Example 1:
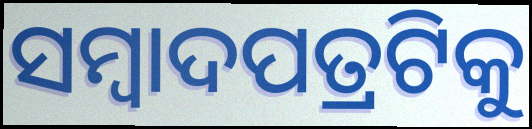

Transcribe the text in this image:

ସମ୍ବାଦପତ୍ରଟିକୁ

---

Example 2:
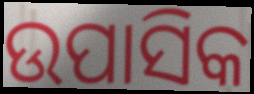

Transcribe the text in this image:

ଉପାସିକ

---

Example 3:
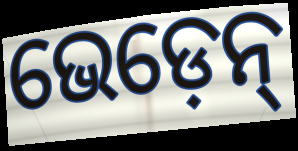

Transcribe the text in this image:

ଭେଡ଼େନ୍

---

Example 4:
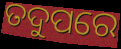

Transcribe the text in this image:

ତଦୁପରେ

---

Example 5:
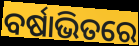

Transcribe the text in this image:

ବର୍ଷାଭିତରେ